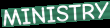
MINISTRY